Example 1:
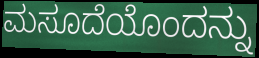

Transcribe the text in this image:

ಮಸೂದೆಯೊಂದನ್ನು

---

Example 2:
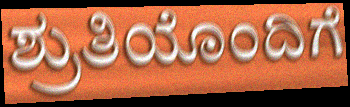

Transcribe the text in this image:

ಶ್ರುತಿಯೊಂದಿಗೆ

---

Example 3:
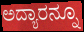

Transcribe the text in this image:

ಅದ್ಯಾರನ್ನೂ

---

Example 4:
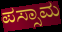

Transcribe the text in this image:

ಪಸ್ಸಾಮ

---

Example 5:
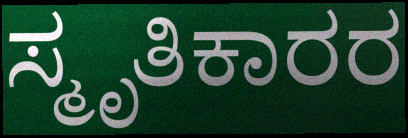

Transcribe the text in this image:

ಸ್ಮೃತಿಕಾರರ